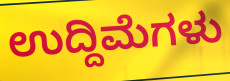
ಉದ್ದಿಮೆಗಳು